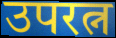
उपरत्न